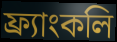
ফ্র্যাংকলি